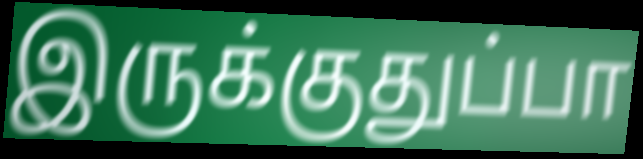
இருக்குதுப்பா